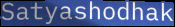
Satyashodhak